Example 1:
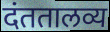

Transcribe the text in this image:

दंततालव्य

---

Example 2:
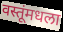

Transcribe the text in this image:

वस्तूंमधला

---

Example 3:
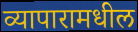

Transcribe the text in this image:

व्यापारामधील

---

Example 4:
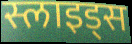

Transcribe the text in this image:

स्लाइड्स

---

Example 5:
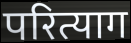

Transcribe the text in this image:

परित्याग